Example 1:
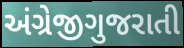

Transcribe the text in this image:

અંગ્રેજીગુજરાતી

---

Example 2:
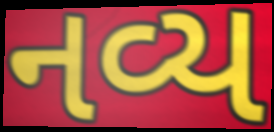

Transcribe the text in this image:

નવ્ય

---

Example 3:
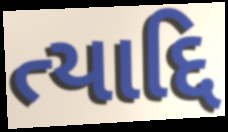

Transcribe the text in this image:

ત્યાદ્દિ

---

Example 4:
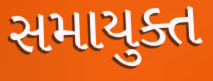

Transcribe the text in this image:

સમાયુક્ત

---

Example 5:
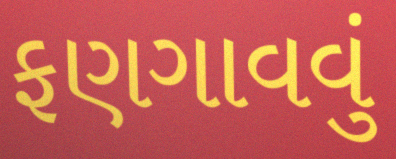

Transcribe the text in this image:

ફણગાવવું